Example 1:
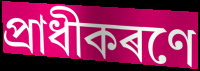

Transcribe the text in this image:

প্ৰাধীকৰণে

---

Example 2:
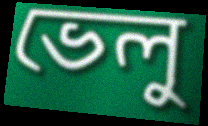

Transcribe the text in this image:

ভেলু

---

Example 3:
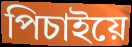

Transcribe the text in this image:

পিচাইয়ে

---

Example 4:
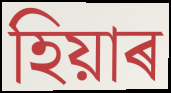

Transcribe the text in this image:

হিয়াৰ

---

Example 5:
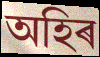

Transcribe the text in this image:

অহিৰ